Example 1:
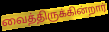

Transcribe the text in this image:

வைத்திருக்கின்றார்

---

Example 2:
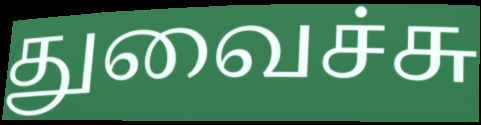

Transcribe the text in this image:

துவைச்சு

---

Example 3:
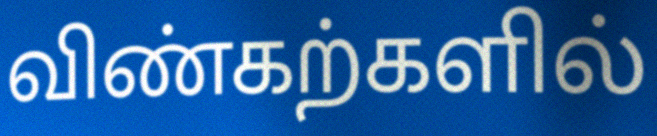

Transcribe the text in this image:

விண்கற்களில்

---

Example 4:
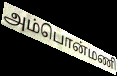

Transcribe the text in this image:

அம்பொன்மணி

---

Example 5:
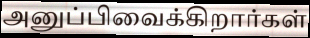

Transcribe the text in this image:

அனுப்பிவைக்கிறார்கள்